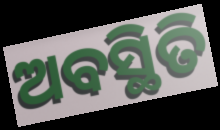
ଅବସ୍ଥିତି